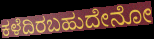
ಕಳೆದಿರಬಹುದೇನೋ